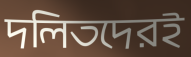
দলিতদেরই